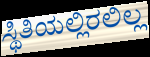
ಸ್ಥಿತಿಯಲ್ಲಿರಲಿಲ್ಲ